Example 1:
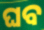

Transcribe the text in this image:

ଘବ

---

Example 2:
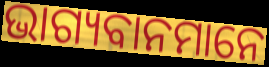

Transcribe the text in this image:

ଭାଗ୍ୟବାନମାନେ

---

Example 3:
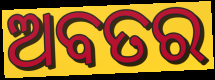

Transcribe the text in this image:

ଅବତର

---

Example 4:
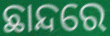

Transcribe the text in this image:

ଛାନ୍ଦରେ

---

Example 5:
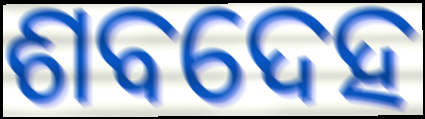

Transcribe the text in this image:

ଶବଦେହ